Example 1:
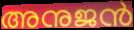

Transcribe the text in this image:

അനുജൻ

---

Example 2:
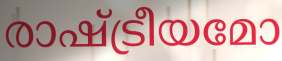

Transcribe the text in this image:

രാഷ്ട്രീയമോ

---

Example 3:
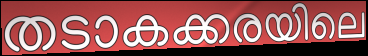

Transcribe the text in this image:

തടാകക്കരയിലെ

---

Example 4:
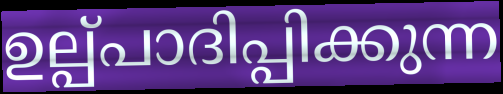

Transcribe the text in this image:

ഉല്പ്പാദിപ്പിക്കുന്ന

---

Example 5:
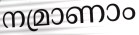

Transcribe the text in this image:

നമ്രാണാം